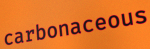
carbonaceous